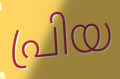
പ്രിയ